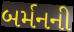
બર્મનની